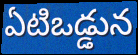
ఏటిఒడ్డున